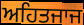
ਅਹਿਤਜਾਜ